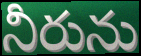
నీరును